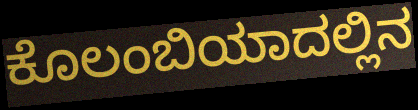
ಕೊಲಂಬಿಯಾದಲ್ಲಿನ